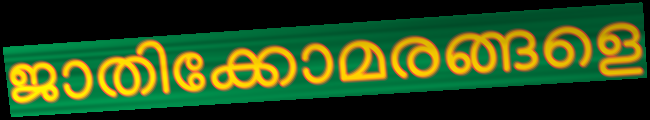
ജാതിക്കോമരങ്ങളെ